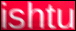
ishtu